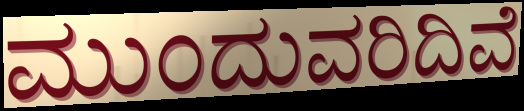
ಮುಂದುವರಿದಿವೆ